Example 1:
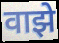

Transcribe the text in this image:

वाझे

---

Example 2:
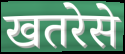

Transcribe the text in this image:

खतरेसे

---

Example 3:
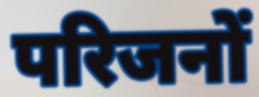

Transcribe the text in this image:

परिजनों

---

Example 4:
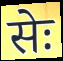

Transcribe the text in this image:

सेः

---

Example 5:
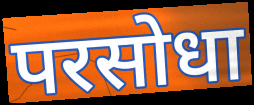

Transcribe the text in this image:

परसोधा